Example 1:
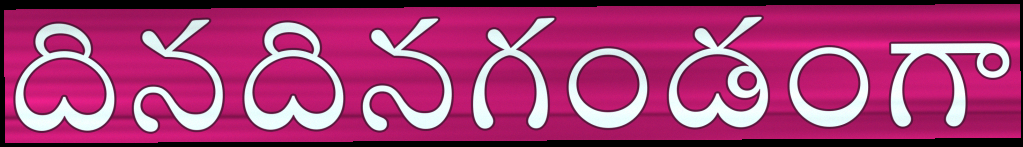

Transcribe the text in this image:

దినదినగండంగా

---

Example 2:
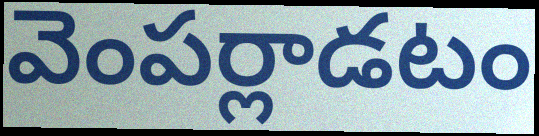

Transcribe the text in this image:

వెంపర్లాడటం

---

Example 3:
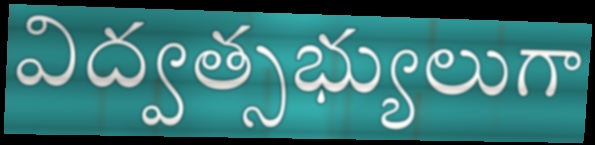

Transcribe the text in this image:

విద్వత్సభ్యులుగా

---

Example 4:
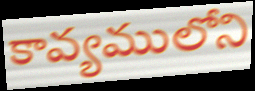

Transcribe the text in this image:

కావ్యములోని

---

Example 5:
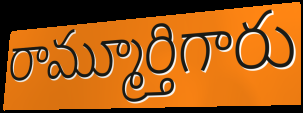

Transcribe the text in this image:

రామ్మూర్తిగారు